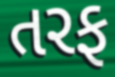
તરફ